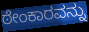
ಠೇಂಕಾರವನ್ನು